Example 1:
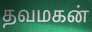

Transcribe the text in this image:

தவமகன்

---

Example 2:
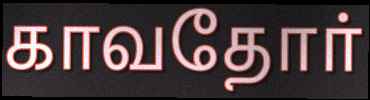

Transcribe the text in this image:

காவதோர்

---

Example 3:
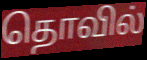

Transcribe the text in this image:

தொவில்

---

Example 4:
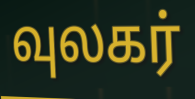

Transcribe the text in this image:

வுலகர்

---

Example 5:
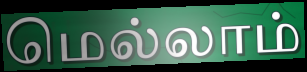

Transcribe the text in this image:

மெல்லாம்